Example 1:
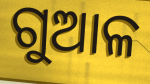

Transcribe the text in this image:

ଗୁଆଳ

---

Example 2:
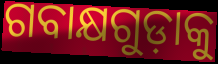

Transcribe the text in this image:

ଗବାକ୍ଷଗୁଡ଼ାକୁ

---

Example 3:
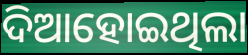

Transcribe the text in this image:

ଦିଆହୋଇଥିଲା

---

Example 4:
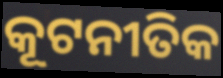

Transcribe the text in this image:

କୂଟନୀତିକ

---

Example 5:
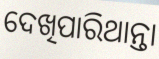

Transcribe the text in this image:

ଦେଖିପାରିଥାନ୍ତା